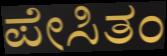
ಪೇಸಿತಂ